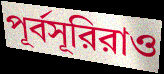
পূর্বসূরিরাও